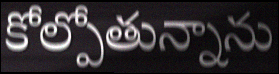
కోల్పోతున్నాను